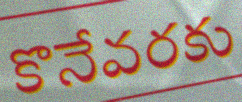
కొనేవరకు